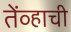
तेंव्हाची